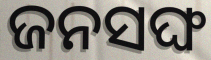
ଜନସଙ୍ଘ